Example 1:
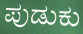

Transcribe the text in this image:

ಪುಡುಕು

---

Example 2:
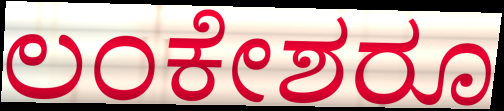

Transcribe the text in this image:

ಲಂಕೇಶರೂ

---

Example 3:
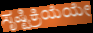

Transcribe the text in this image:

ಸೃಷ್ಟಿಕ್ರಿಯೆಯೇ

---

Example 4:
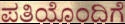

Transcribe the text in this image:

ಪತಿಯೊಂದಿಗೆ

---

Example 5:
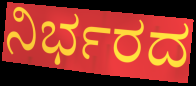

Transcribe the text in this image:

ನಿರ್ಭರದ